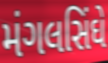
મંગલસિંઘે